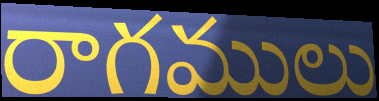
రాగములు